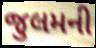
જુલમની